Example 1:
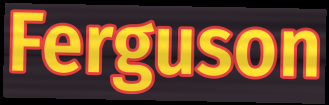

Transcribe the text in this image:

Ferguson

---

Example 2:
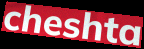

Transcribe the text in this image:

cheshta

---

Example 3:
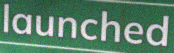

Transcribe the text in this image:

launched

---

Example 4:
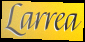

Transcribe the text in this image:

Larrea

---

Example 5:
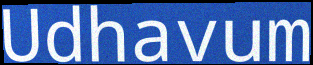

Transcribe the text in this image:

Udhavum